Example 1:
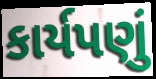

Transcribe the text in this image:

કાર્યપણું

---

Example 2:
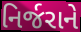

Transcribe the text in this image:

નિર્જરાને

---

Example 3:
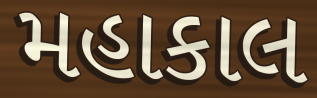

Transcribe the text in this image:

મહાકાલ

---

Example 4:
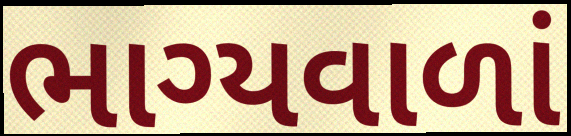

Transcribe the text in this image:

ભાગ્યવાળાં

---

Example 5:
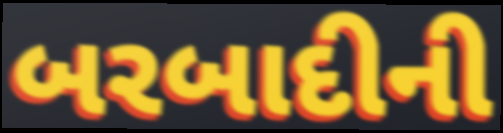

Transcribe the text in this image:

બરબાદીની